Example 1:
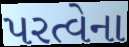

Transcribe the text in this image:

પરત્વેના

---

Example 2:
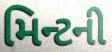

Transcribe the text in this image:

મિન્ટની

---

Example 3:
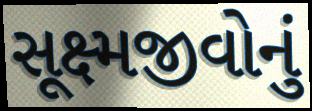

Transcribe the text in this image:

સૂક્ષ્મજીવોનું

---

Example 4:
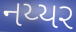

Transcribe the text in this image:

નય્યર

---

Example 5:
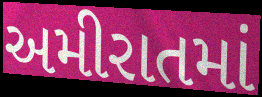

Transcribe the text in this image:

અમીરાતમાં